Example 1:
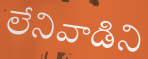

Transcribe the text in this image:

లేనివాడిని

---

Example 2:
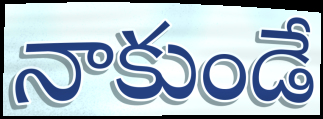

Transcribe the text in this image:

నాకుండే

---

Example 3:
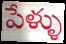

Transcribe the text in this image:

పేళ్ళు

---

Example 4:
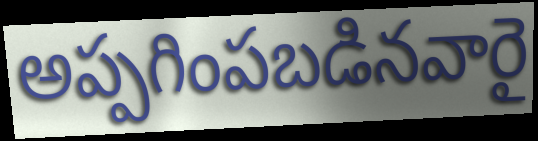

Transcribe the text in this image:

అప్పగింపబడినవారై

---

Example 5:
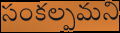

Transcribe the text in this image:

సంకల్పమని